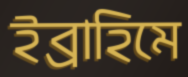
ইব্ৰাহিমে